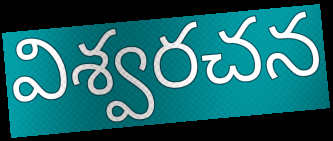
విశ్వరచన